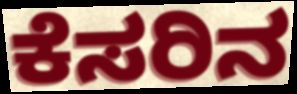
ಕೆಸರಿನ